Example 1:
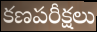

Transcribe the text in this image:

కణపరీక్షలు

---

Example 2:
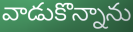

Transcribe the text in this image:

వాడుకొన్నాను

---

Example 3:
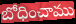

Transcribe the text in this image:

బోధించాము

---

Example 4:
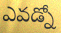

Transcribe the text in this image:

ఎవడ్నో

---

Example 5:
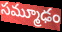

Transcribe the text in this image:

సమ్మూఢం